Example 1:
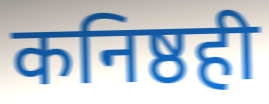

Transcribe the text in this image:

कनिष्ठही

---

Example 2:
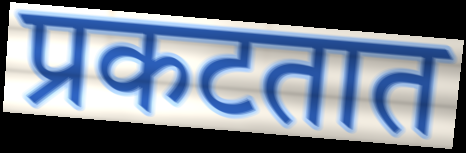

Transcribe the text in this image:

प्रकटतात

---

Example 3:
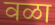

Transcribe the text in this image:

वळा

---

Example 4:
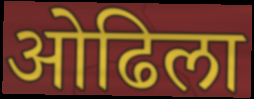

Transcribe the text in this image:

ओढिला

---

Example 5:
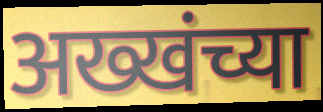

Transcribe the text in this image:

अख्खंच्या